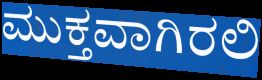
ಮುಕ್ತವಾಗಿರಲಿ